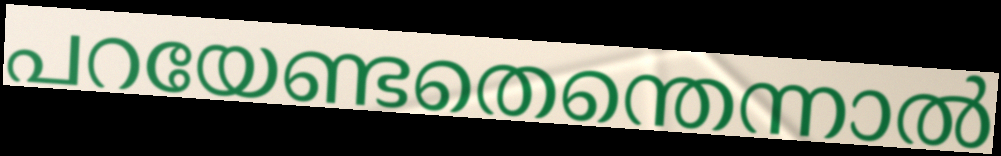
പറയേണ്ടതെന്തെന്നാൽ